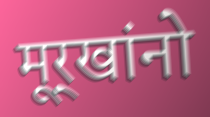
मूर्खांनो